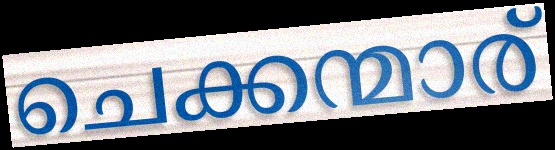
ചെക്കന്മാര്